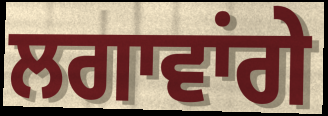
ਲਗਾਵਾਂਗੇ